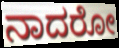
ನಾದರೋ